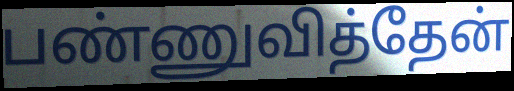
பண்ணுவித்தேன்